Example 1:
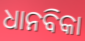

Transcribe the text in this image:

ଧାନବିକା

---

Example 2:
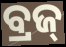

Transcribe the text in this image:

ବ୍ରଜ୍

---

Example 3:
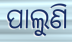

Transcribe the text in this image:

ପାଲୁଣି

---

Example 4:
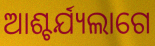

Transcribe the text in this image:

ଆଶ୍ଚର୍ଯ୍ୟଲାଗେ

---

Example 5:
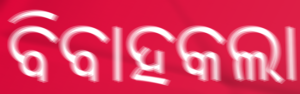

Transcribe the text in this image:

ବିବାହକଲା